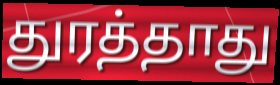
துரத்தாது